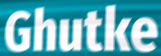
Ghutke